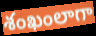
శంఖంలాగా